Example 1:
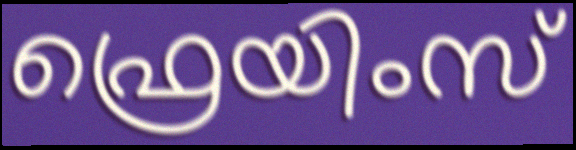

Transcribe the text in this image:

ഫ്രെയിംസ്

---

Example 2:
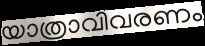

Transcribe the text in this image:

യാത്രാവിവരണം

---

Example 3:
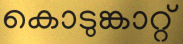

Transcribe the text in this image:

കൊടുങ്കാറ്റ്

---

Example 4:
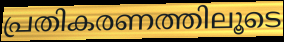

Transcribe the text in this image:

പ്രതികരണത്തിലൂടെ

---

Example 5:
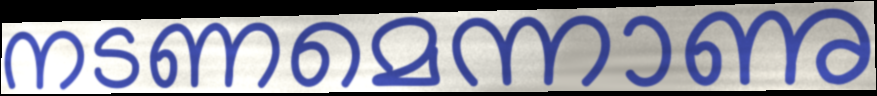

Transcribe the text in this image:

നടണമെന്നാണു